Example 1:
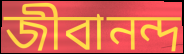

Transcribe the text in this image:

জীবানন্দ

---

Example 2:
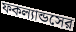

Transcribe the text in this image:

ফকল্যান্ডসের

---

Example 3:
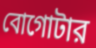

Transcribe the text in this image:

বোগোটার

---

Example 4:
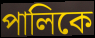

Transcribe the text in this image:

পালিকে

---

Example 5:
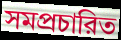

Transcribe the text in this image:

সমপ্রচারিত